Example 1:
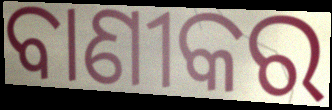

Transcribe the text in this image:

ବାଣୀକର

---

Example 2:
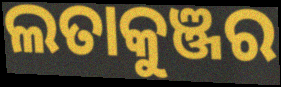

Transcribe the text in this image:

ଲତାକୁଞ୍ଜର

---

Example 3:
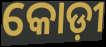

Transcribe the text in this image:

କୋଡ଼ୀ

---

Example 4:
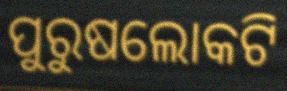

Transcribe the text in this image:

ପୁରୁଷଲୋକଟି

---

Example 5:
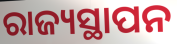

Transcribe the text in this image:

ରାଜ୍ୟସ୍ଥାପନ